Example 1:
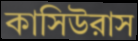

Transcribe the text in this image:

কাসিউরাস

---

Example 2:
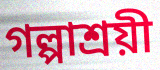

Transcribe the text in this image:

গল্পাশ্রয়ী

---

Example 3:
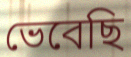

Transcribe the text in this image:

ভেবেছি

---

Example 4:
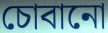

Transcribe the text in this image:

চোবানো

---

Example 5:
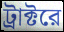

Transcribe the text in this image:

ট্রাক্টরে